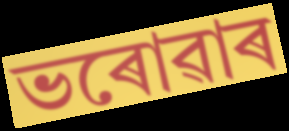
ভৰোৱাৰ